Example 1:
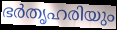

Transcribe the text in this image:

ഭർതൃഹരിയും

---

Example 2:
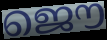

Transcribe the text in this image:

ജൌ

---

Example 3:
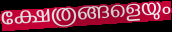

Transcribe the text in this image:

ക്ഷേത്രങ്ങളെയും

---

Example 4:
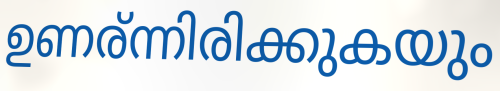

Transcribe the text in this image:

ഉണര്ന്നിരിക്കുകയും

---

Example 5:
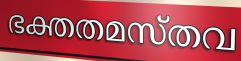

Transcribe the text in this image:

ഭക്തതമസ്തവ